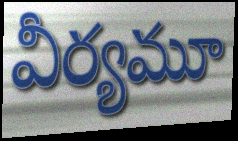
వీర్యమూ